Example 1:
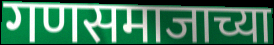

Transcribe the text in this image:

गणसमाजाच्या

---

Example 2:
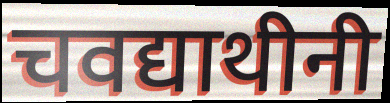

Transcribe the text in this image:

चवद्याथीनी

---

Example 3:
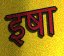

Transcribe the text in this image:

इषा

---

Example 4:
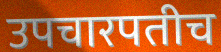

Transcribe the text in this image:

उपचारपतीच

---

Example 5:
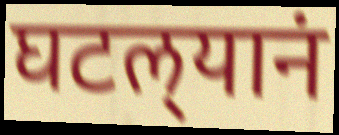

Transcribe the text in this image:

घटल्यानं